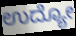
ಉದ್ಯೋ